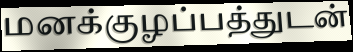
மனக்குழப்பத்துடன்